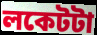
লকেটটা